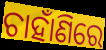
ଚାହାଁଣିରେ